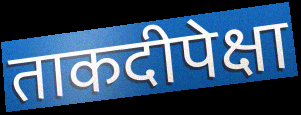
ताकदीपेक्षा